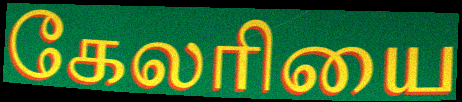
கேலரியை